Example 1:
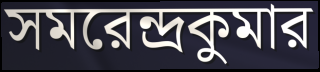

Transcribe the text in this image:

সমরেন্দ্রকুমার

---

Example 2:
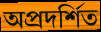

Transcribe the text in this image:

অপ্রদর্শিত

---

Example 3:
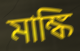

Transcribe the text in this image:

মাঙ্কি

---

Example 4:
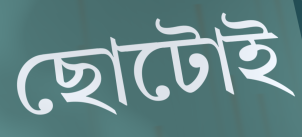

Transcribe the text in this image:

ছোটোই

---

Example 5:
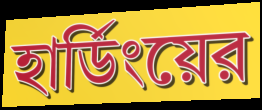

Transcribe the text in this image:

হার্ডিংয়ের